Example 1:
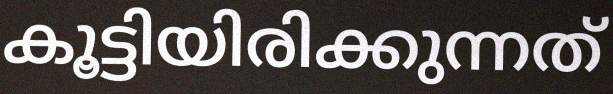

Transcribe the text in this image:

കൂട്ടിയിരിക്കുന്നത്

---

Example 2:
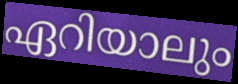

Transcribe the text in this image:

ഏറിയാലും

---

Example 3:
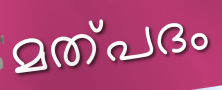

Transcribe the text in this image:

മത്പദം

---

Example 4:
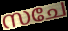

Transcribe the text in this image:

സചേ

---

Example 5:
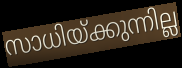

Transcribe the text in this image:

സാധിയ്ക്കുന്നില്ല